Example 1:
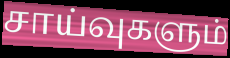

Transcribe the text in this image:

சாய்வுகளும்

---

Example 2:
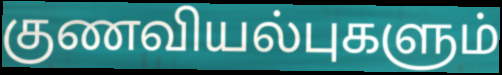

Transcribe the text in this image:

குணவியல்புகளும்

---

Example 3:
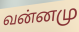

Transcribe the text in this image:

வன்னமு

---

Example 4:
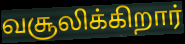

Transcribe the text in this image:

வசூலிக்கிறார்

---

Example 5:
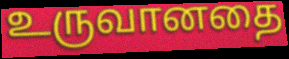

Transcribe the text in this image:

உருவானதை